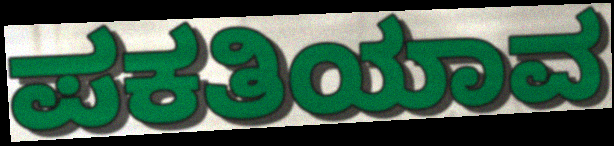
ಪಕತಿಯಾವ